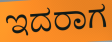
ಇದರಾಗ